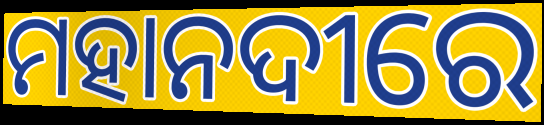
ମହାନଦୀରେ